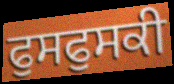
ਫੁਸਫੁਸਕੀ